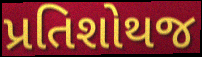
પ્રતિશોથજ